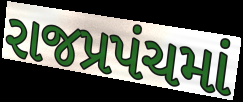
રાજપ્રપંચમાં